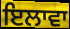
ਇਲਾਵਾ